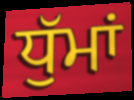
ਧੁੱਮਾਂ